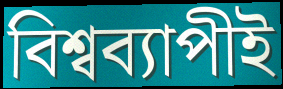
বিশ্বব্যাপীই